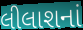
લીલાશનાં